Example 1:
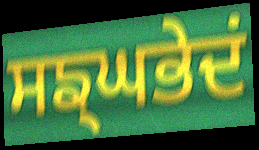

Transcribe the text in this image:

ਸਙ੍ਘਭੇਦਂ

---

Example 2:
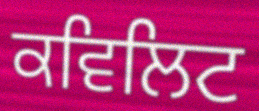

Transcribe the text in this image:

ਕਵਿਲਿਟ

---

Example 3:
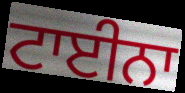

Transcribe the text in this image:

ਟਾਈਨਾ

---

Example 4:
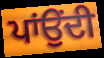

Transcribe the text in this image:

ਪਾਂਉਂਦੀ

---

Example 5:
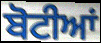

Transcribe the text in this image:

ਬੋਟੀਆਂ